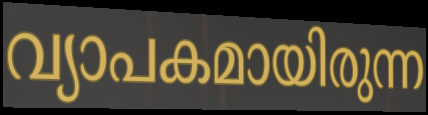
വ്യാപകമായിരുന്ന